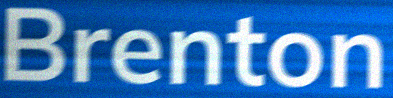
Brenton